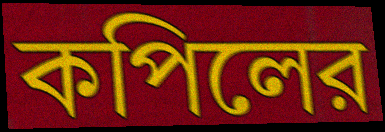
কপিলের